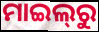
ମାଇଲ୍‌ରୁ